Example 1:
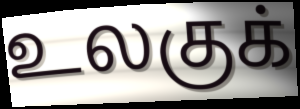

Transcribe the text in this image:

உலகுக்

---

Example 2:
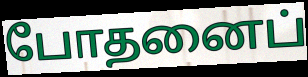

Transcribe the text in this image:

போதனைப்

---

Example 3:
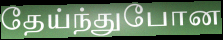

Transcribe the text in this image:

தேய்ந்துபோன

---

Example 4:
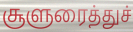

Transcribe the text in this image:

சூளுரைத்துச்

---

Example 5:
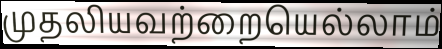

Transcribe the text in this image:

முதலியவற்றையெல்லாம்